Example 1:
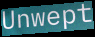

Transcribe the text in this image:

Unwept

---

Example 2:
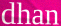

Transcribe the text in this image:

dhan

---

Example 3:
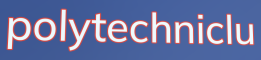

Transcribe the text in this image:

polytechniclu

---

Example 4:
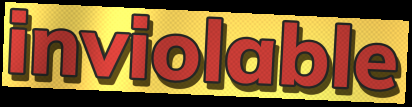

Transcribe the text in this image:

inviolable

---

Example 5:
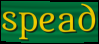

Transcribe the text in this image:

spead